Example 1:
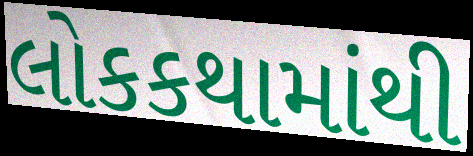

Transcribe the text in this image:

લોકકથામાંથી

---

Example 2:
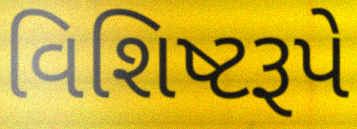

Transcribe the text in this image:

વિશિષ્ટરૂપે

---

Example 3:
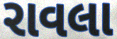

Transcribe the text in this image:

રાવલા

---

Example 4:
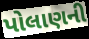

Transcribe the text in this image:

પોલાણની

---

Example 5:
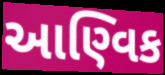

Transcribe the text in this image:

આણ્વિક